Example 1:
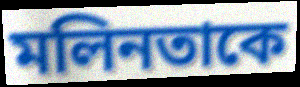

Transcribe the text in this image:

মলিনতাকে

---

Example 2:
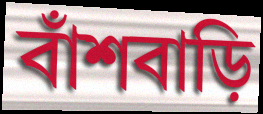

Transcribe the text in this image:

বাঁশবাড়ি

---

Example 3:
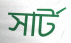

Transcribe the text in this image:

সার্ট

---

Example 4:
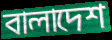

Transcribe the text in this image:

বালাদেশ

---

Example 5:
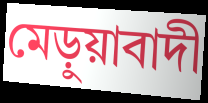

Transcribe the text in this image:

মেড়ুয়াবাদী